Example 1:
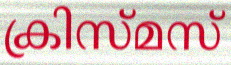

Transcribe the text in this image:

ക്രിസ്മസ്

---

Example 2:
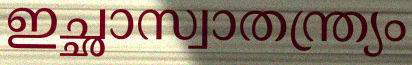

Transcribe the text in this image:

ഇച്ഛാസ്വാതന്ത്ര്യം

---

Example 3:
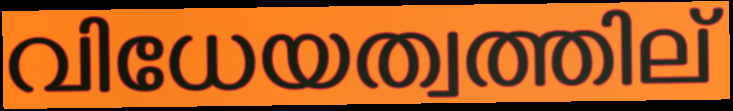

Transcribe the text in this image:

വിധേയത്വത്തില്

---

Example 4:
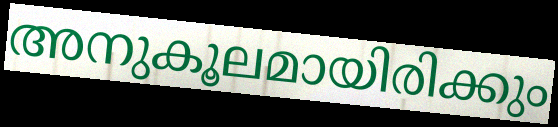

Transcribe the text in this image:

അനുകൂലമായിരിക്കും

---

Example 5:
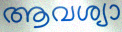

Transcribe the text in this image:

ആവശ്യാ